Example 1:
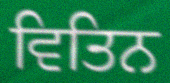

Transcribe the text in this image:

ਵਿਤਿਨ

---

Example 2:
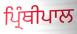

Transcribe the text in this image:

ਪ੍ਰਿੰਥੀਪਾਲ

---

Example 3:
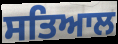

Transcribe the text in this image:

ਸਤਿਆਲ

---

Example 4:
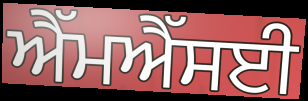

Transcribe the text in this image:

ਐੱਮਐੱਸਈ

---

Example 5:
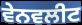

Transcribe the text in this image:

ਵੇਨਵਲੀਟ